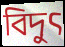
বিদুৎ